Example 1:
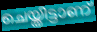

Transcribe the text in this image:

ചെയ്തിട്ടാണ്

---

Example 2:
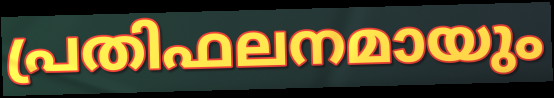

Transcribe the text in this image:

പ്രതിഫലനമായും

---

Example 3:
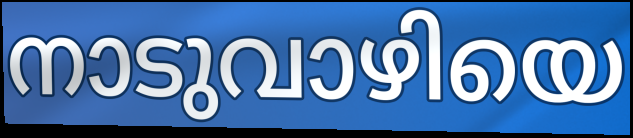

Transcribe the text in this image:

നാടുവാഴിയെ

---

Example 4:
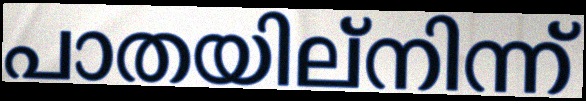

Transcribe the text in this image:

പാതയില്നിന്ന്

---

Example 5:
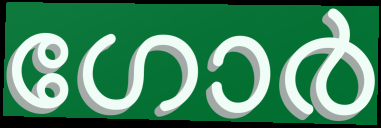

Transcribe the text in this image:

ഗോർ